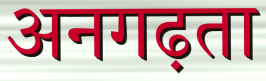
अनगढ़ता